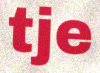
tje